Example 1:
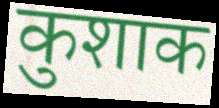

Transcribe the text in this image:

कुशाक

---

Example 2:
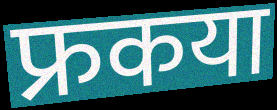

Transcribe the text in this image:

फ्रकया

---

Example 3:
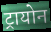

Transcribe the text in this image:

ट्रायोन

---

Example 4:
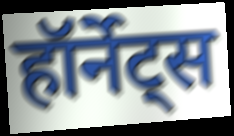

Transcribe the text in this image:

हॉर्नेट्स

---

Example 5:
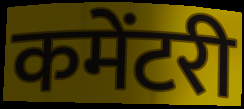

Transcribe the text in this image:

कमेंटरी